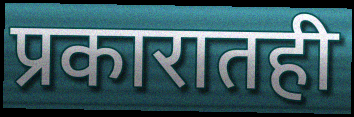
प्रकारातही